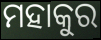
ମହାକୁର